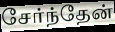
சேர்ந்தேன்